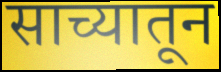
साच्यातून